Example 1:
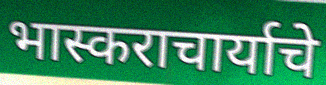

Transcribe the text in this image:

भास्कराचार्याचे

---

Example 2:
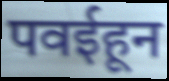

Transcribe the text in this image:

पवईहून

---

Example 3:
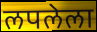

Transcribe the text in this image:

लपलेला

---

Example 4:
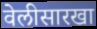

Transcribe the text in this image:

वेलीसारखा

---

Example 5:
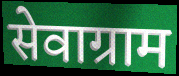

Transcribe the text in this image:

सेवाग्राम